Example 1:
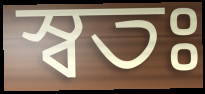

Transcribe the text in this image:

স্বতঃ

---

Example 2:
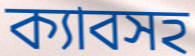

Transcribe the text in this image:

ক্যাবসহ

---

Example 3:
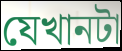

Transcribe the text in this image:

যেখানটা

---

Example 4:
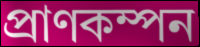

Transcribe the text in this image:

প্রাণকম্পন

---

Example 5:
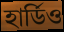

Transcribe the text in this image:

হার্ডিও